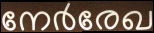
നേർരേഖ